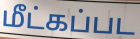
மீட்கப்பட